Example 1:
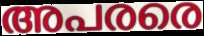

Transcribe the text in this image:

അപരരെ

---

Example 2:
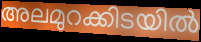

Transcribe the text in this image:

അലമുറക്കിടയിൽ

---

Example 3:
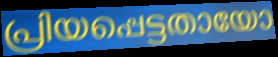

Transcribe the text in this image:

പ്രിയപ്പെട്ടതായോ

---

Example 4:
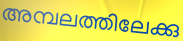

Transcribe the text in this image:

അമ്പലത്തിലേക്കു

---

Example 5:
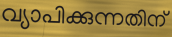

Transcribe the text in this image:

വ്യാപിക്കുന്നതിന്